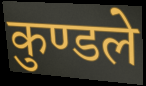
कुण्डले